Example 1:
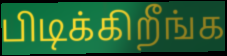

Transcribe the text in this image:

பிடிக்கிறீங்க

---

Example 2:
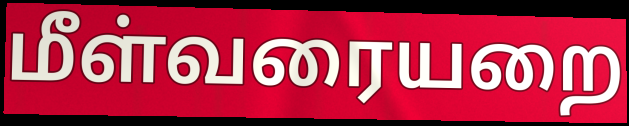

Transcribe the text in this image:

மீள்வரையறை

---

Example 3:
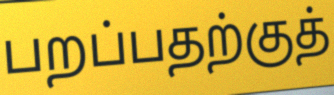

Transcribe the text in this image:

பறப்பதற்குத்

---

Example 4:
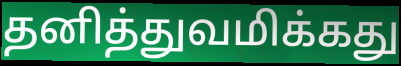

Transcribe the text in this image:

தனித்துவமிக்கது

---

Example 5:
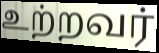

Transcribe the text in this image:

உற்றவர்